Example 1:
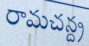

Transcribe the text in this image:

రామచన్ద్ర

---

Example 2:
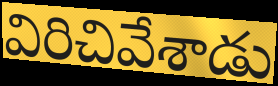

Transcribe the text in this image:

విరిచివేశాడు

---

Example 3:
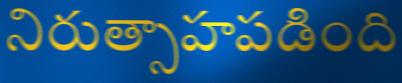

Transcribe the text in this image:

నిరుత్సాహపడింది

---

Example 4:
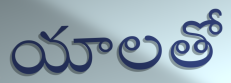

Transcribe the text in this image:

యాలతో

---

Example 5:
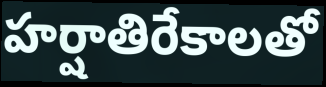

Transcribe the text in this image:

హర్షాతిరేకాలతో